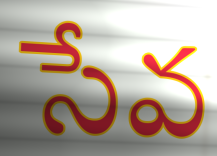
సేవ